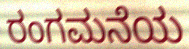
ರಂಗಮನೆಯ